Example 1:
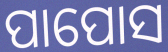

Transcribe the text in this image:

ପାପୋସ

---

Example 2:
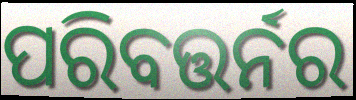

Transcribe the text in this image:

ପରିବତ୍ତର୍ନର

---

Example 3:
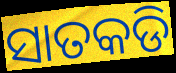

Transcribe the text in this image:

ସାତକଡି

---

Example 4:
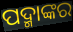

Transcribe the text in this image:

ପଦ୍ମାଙ୍କର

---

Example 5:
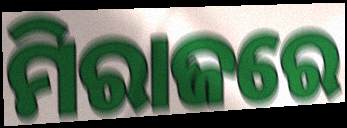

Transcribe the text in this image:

ମିରାଜରେ